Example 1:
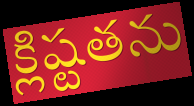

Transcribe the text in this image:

క్లిష్టతను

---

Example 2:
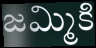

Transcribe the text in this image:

జమ్మికి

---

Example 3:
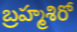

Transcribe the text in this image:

బ్రహ్మశిరో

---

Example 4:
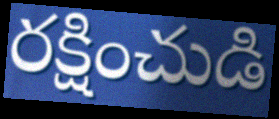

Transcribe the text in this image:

రక్షించుడి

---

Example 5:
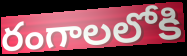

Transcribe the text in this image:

రంగాలలోకి